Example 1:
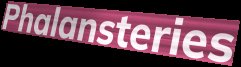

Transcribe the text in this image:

Phalansteries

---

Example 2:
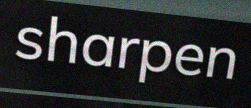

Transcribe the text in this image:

sharpen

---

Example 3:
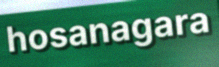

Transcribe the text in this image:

hosanagara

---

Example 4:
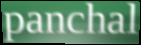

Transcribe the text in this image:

panchal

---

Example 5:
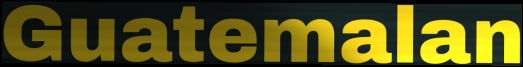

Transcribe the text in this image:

Guatemalan